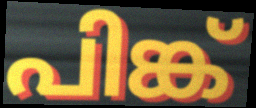
പിങ്ക്